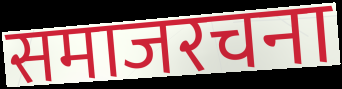
समाजरचना